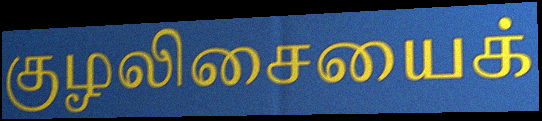
குழலிசையைக்